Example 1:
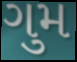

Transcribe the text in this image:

ગુમ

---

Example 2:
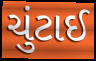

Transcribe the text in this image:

ચુંટાઈ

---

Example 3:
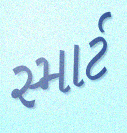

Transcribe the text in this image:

સ્માર્ટ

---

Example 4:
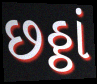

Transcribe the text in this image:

છઠ્ઠાં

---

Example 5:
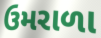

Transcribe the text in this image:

ઉમરાળા